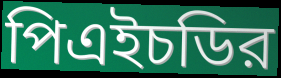
পিএইচডির